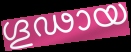
ഗൂഢായ